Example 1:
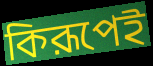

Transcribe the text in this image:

কিরূপেই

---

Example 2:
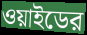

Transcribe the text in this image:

ওয়াইডের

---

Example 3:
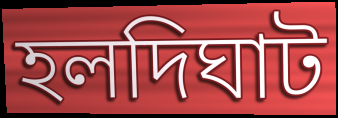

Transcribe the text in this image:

হলদিঘাট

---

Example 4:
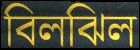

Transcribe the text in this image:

বিলঝিল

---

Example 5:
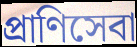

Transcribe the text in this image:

প্রাণিসেবা